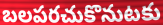
బలపరచుకొనుటకు